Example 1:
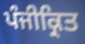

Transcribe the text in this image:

ਪੰਜੀਕ੍ਰਿਤ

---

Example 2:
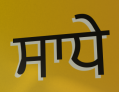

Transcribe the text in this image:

ਸਾਧੇ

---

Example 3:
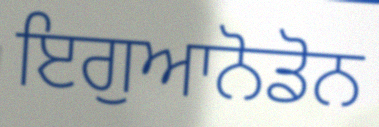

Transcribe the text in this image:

ਇਗੁਆਨੋਡੋਨ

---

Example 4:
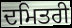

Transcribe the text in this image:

ਦਮਿਤਰੀ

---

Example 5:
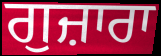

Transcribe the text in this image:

ਗੁਜ਼ਾਰਾ